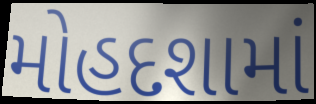
મોહદશામાં